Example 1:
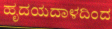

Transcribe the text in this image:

ಹೃದಯದಾಳದಿಂದ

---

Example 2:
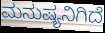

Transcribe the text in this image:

ಮನುಷ್ಯನಿಗಿದೆ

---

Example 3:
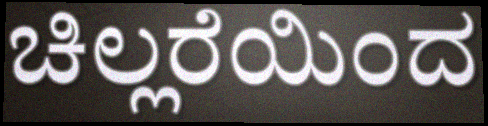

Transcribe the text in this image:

ಚಿಲ್ಲರೆಯಿಂದ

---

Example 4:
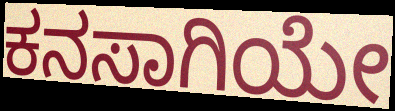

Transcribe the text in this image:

ಕನಸಾಗಿಯೇ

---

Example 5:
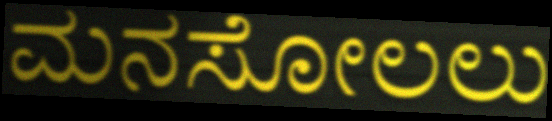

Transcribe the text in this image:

ಮನಸೋಲಲು